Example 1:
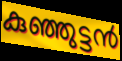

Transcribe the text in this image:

കുഞ്ഞുട്ടൻ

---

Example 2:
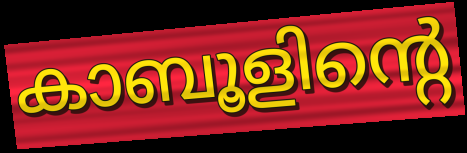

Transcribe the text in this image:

കാബൂളിന്റെ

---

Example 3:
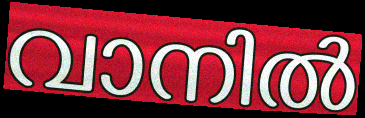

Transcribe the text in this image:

വാനിൽ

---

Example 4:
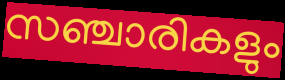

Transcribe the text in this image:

സഞ്ചാരികളും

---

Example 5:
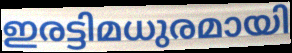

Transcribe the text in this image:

ഇരട്ടിമധുരമായി